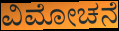
ವಿಮೋಚನೆ